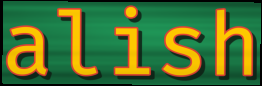
alish